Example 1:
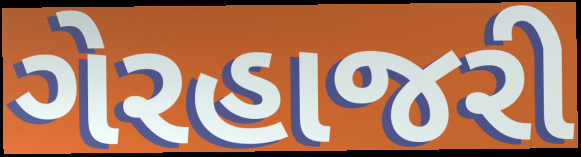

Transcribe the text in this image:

ગેરહાજરી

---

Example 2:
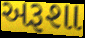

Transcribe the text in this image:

અરૂશા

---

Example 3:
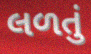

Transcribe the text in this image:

લળતું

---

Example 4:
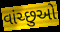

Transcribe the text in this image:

વાંચ્છુઓ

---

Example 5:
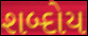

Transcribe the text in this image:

શબ્દોય